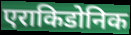
एराकिडोनिक